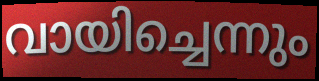
വായിച്ചെന്നും